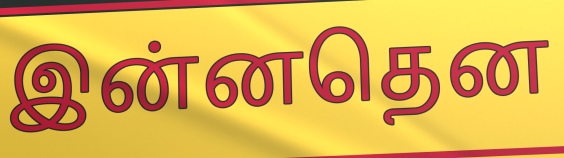
இன்னதென